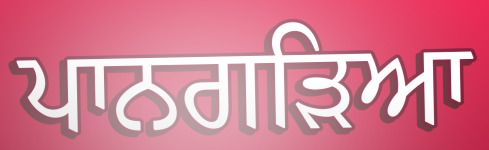
ਪਾਨਗੜਿਆ